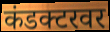
कंडक्टरवर